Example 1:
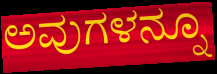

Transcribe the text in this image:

ಅವುಗಳನ್ನೂ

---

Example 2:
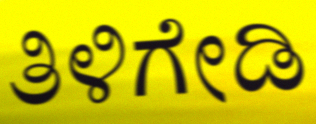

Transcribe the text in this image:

ತಿಳಿಗೇಡಿ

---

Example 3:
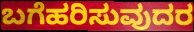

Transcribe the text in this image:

ಬಗೆಹರಿಸುವುದರ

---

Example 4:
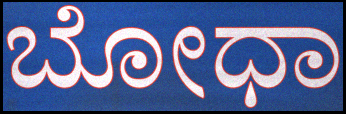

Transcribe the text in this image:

ಬೋಧಾ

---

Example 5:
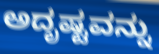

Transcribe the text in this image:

ಅದೃಷ್ಟವನ್ನು